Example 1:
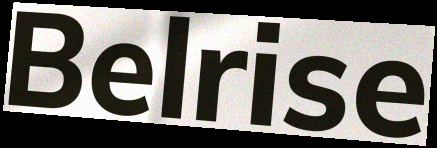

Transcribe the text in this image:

Belrise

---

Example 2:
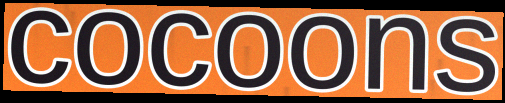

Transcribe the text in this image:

cocoons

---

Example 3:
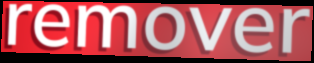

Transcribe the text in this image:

remover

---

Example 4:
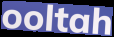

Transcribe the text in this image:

ooltah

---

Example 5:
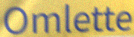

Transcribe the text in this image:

Omlette